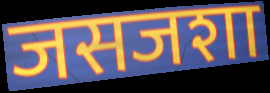
जसजशा